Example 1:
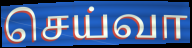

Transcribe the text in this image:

செய்வா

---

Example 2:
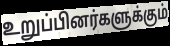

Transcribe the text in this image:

உறுப்பினர்களுக்கும்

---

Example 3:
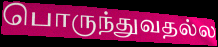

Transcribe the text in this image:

பொருந்துவதல்ல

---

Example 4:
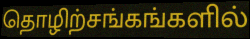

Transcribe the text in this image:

தொழிற்சங்கங்களில்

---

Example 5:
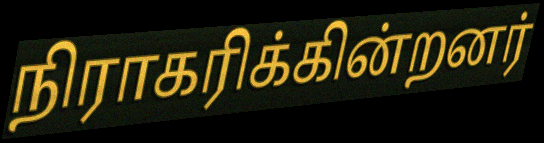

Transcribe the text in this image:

நிராகரிக்கின்றனர்